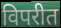
विपरीत